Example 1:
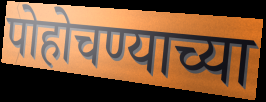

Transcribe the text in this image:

पोहोचण्याच्या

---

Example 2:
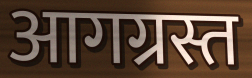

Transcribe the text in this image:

आगग्रस्त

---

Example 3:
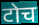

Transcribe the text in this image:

टोच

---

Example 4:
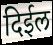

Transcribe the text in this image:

दिईल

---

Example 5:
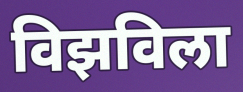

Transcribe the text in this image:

विझविला